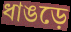
ধাঙড়ে